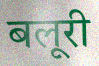
बलूरी